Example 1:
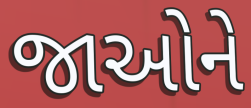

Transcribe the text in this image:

જાઓને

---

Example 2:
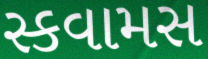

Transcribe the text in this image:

સ્કવામસ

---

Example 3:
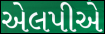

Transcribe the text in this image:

એલપીએ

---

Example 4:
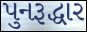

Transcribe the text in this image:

પુનરૂદ્ધાર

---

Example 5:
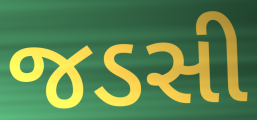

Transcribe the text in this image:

જડસી